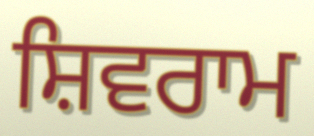
ਸ਼ਿਵਰਾਮ